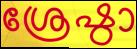
ശ്രേഷ്ഠാ